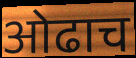
ओढाच